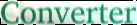
Converter